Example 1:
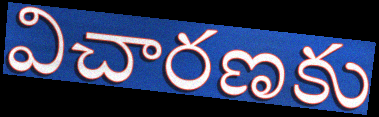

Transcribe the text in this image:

విచారణకు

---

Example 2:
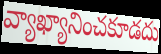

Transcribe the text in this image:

వ్యాఖ్యానించకూడదు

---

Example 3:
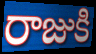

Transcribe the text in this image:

రాజుకి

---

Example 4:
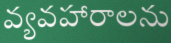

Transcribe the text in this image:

వ్యవహారాలను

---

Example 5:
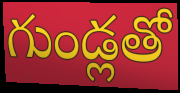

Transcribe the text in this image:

గుండ్లతో